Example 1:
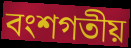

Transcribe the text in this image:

বংশগতীয়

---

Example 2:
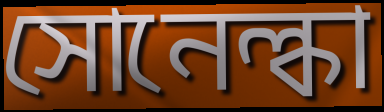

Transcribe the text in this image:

সোনেল্কা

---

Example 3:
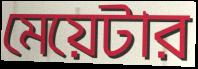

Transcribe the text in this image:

মেয়েটার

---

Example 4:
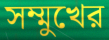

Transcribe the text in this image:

সম্মুখের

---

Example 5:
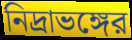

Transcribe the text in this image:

নিদ্রাভঙ্গের